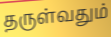
தருள்வதும்